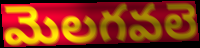
మెలగవలె